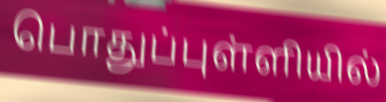
பொதுப்புள்ளியில்